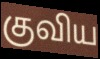
குவிய